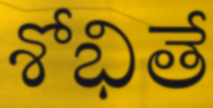
శోభితే